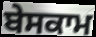
ਬੇਸਕਾਮ